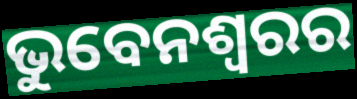
ଭୁବେନଶ୍ବରର